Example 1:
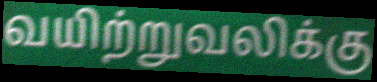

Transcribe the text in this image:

வயிற்றுவலிக்கு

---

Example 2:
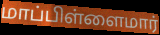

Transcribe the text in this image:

மாப்பிள்ளைமார்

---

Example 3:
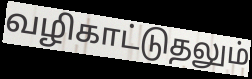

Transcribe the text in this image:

வழிகாட்டுதலும்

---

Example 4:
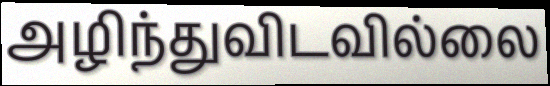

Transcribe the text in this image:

அழிந்துவிடவில்லை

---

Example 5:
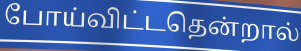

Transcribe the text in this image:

போய்விட்டதென்றால்